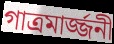
গাত্রমার্জ্জনী